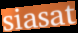
siasat